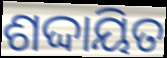
ଶଦ୍ଦାୟିତ